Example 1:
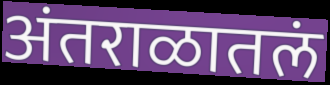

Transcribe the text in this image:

अंतराळातलं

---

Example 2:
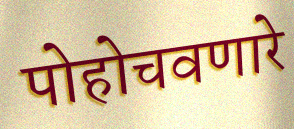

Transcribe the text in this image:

पोहोचवणारे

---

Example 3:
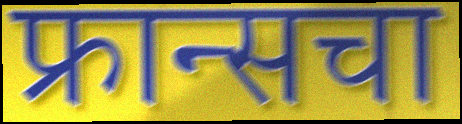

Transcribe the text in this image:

फ्रान्सचा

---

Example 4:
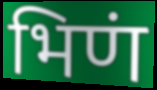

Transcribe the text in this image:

भिणं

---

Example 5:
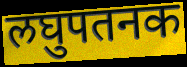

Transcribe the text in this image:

लघुपतनक